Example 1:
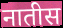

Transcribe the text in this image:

नातीस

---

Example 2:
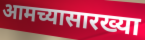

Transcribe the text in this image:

आमच्यासारख्या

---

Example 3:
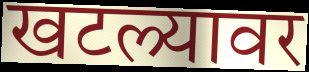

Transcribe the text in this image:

खटल्यावर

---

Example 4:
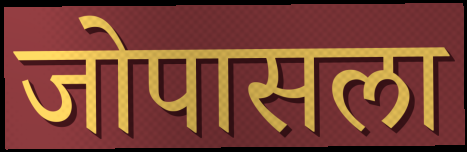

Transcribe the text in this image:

जोपासला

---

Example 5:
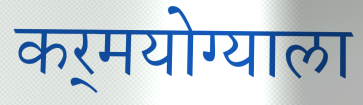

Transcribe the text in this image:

कर्मयोग्याला